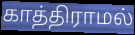
காத்திராமல்